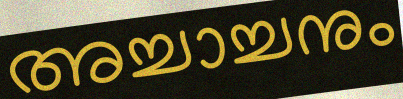
അച്ചാച്ചനും